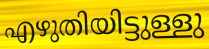
എഴുതിയിട്ടുള്ളു